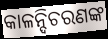
କାଳନ୍ଦିଚରଣଙ୍କ